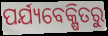
ପର୍ଯ୍ୟବେକ୍ଷିତରୁ